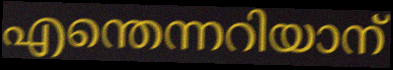
എന്തെന്നറിയാന്